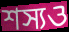
শস্যও